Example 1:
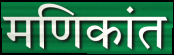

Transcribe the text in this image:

मणिकांत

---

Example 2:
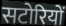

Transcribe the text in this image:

सटोरियों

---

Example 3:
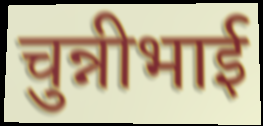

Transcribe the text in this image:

चुन्नीभाई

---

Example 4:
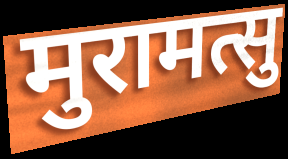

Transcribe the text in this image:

मुरामत्सु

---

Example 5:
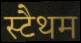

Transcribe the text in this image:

स्टैथम